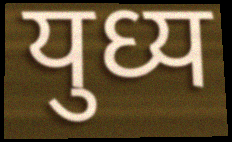
युध्य